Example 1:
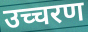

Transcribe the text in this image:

उच्चरण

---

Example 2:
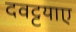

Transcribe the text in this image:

दवट्टयाए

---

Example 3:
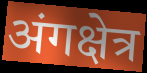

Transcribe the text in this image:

अंगक्षेत्र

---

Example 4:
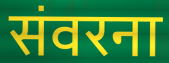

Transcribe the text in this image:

संवरना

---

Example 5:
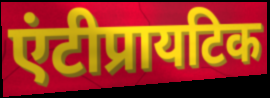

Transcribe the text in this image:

एंटीप्रायटिक